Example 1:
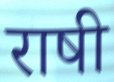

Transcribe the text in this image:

राषी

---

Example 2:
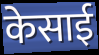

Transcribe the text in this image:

केसाई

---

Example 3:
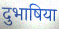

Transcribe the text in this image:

दुभाषिया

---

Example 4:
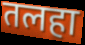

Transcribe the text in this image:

तलहा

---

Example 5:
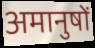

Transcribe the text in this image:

अमानुषों